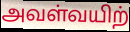
அவள்வயிற்